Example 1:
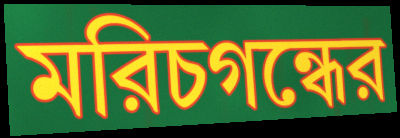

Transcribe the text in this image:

মরিচগন্ধের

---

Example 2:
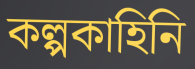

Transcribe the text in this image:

কল্পকাহিনি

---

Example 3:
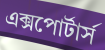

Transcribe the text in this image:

এক্সপোর্টার্স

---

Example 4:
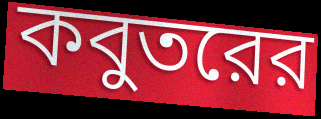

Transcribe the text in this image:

কবুতরের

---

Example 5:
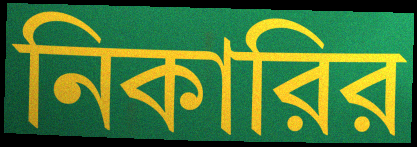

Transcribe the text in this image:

নিকারির